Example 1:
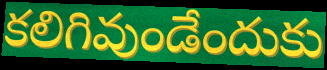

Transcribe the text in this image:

కలిగివుండేందుకు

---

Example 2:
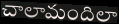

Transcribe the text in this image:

చాలామందిలా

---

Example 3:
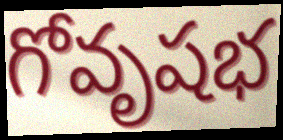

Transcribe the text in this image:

గోవృషభ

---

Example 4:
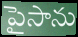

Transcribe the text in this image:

పైసాను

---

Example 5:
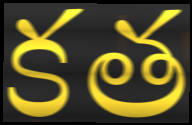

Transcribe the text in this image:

కత